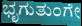
ಭೃಗುತುಂಗೇ